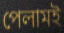
পেলামই